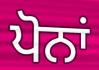
ਪੋਨਾਂ